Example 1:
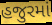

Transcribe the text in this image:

હજુરમાં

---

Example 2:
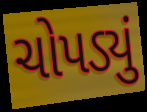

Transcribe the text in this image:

ચોપડ્યું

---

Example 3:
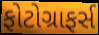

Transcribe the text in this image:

ફોટોગ્રાફર્સ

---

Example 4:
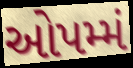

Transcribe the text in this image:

ઓપમ્મં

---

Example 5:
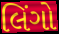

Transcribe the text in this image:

લિંગો